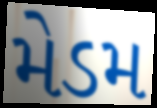
મેડમ